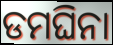
ଡମଘିନା